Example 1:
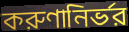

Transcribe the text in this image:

করুণানির্ভর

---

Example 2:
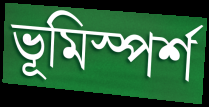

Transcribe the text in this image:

ভূমিস্পর্শ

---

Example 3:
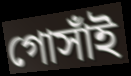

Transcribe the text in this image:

গোসাঁই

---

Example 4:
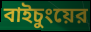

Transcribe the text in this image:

বাইচুংয়ের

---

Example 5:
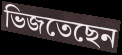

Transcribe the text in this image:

ভিজতেছেন